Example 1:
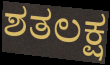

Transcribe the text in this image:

ಶತಲಕ್ಷ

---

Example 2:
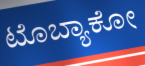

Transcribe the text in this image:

ಟೊಬ್ಯಾಕೋ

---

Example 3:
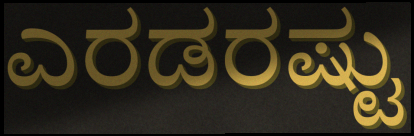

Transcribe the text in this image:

ಎರಡರಷ್ಟು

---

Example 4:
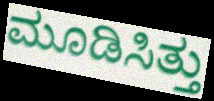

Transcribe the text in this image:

ಮೂಡಿಸಿತ್ತು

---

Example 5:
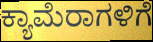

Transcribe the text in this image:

ಕ್ಯಾಮೆರಾಗಳಿಗೆ